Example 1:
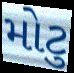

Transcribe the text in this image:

મોટુ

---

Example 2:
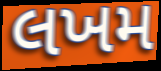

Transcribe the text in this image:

લખમ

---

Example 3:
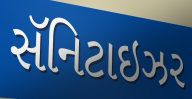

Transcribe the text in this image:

સૅનિટાઇઝર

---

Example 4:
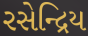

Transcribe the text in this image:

રસેન્દ્રિય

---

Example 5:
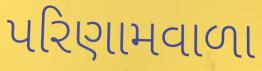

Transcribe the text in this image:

પરિણામવાળા